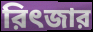
রিৎজার